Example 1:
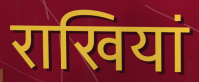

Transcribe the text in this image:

राखियां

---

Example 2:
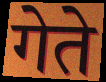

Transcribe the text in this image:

गेते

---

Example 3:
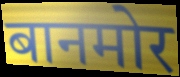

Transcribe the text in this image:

बानमोर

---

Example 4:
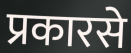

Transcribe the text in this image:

प्रकारसे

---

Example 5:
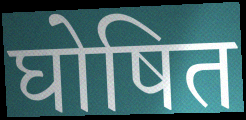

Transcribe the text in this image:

घोषित